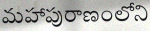
మహాపురాణంలోని